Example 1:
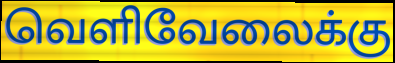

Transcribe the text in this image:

வெளிவேலைக்கு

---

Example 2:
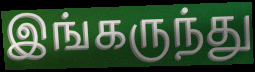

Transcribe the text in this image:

இங்கருந்து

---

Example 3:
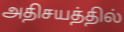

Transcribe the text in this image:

அதிசயத்தில்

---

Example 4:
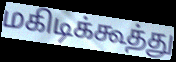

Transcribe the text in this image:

மகிடிக்கூத்து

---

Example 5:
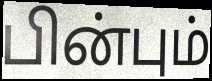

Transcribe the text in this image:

பின்பும்